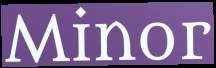
Minor